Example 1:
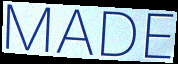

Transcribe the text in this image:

MADE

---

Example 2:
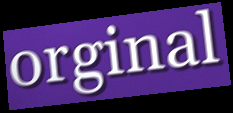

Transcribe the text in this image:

orginal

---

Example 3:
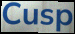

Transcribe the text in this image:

Cusp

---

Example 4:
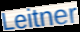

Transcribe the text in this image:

Leitner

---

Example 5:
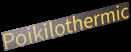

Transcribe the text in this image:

Poikilothermic